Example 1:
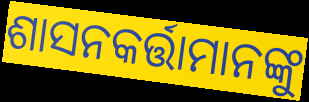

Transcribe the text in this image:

ଶାସନକର୍ତ୍ତାମାନଙ୍କୁ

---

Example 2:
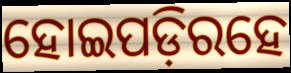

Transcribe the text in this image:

ହୋଇପଡ଼ିରହେ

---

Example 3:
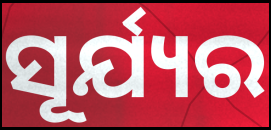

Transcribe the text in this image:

ସୂର୍ଯ୍ୟର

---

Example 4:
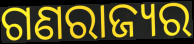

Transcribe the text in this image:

ଗଣରାଜ୍ୟର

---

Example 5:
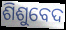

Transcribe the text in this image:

ଶିଶୁବେଦ